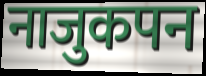
नाजुकपन